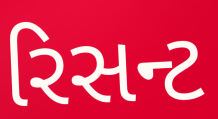
રિસન્ટ